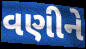
વણીને